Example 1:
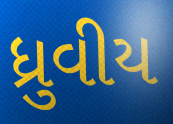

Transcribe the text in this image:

ધ્રુવીય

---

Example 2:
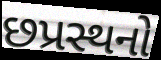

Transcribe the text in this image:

છપ્રસ્થનો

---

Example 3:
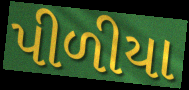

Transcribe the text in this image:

પીળીયા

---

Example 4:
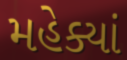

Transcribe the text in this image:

મહેક્યાં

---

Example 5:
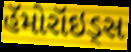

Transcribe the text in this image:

હૅમોરૉઇડ્સ